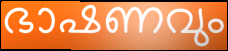
ഭാഷണവും